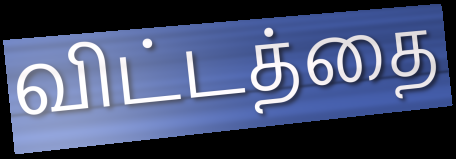
விட்டத்தை